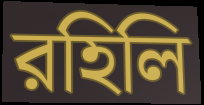
রহিলি